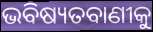
ଭବିଷ୍ୟତବାଣୀକୁ